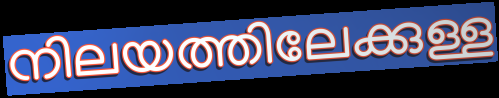
നിലയത്തിലേക്കുള്ള